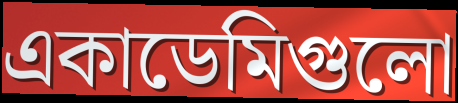
একাডেমিগুলো